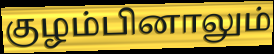
குழம்பினாலும்